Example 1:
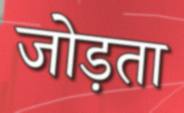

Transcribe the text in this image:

जोड़ता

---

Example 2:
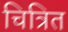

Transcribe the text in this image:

चित्रित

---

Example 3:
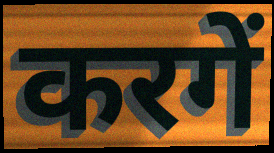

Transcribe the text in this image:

करगें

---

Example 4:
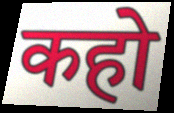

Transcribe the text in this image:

कहो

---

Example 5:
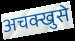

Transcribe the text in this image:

अचक्खुसे